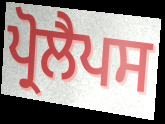
ਪ੍ਰੋਲੈਪਸ